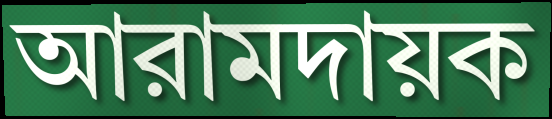
আরামদায়ক